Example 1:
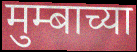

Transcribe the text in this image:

मुम्बाच्या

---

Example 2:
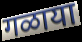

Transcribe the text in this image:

गळाया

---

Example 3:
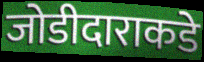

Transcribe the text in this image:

जोडीदाराकडे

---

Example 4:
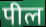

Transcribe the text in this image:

पील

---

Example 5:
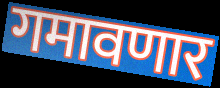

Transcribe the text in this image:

गमावणार